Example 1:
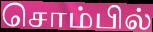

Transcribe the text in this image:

சொம்பில்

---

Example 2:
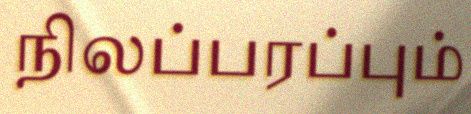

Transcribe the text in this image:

நிலப்பரப்பும்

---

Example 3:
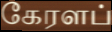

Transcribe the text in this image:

கேரளப்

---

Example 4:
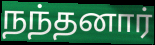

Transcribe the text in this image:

நந்தனார்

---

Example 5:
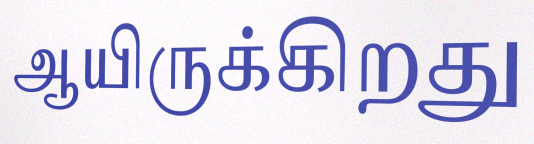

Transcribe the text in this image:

ஆயிருக்கிறது